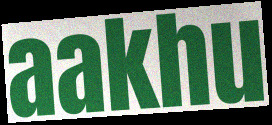
aakhu